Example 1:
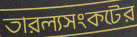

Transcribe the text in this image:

তারল্যসংকটের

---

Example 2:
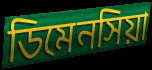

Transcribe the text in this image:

ডিমেনসিয়া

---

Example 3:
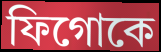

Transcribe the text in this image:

ফিগোকে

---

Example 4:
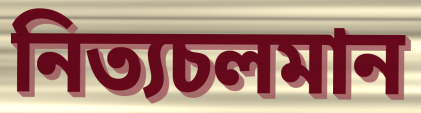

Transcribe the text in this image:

নিত্যচলমান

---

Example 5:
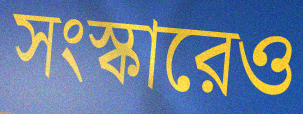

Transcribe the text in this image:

সংস্কারেও